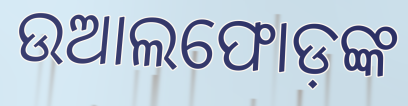
ଉଆଲଫୋଡ଼ଙ୍କ